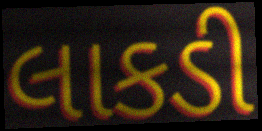
લાકડી